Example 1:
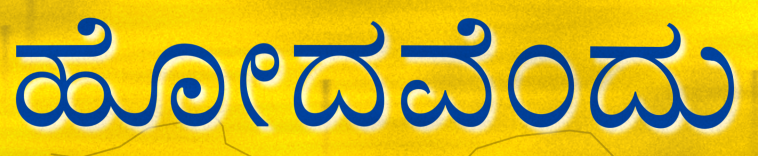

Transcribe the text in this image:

ಹೋದವೆಂದು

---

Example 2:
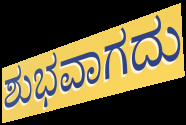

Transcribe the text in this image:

ಶುಭವಾಗದು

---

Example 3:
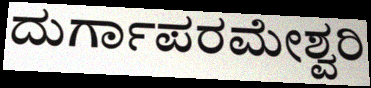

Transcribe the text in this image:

ದುರ್ಗಾಪರಮೇಶ್ವರಿ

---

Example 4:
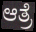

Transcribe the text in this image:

ಆತ್ರೆ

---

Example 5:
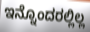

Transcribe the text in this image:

ಇನ್ನೊಂದರಲ್ಲಿಲ್ಲ